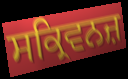
ਸਕ੍ਰਿਵਨਜ਼